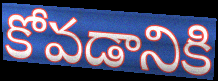
కోవడానికి